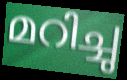
മറിച്ചു